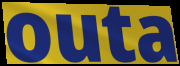
outa